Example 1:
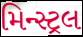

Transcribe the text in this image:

મિન્સ્ટ્રલ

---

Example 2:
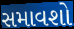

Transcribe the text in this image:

સમાવશો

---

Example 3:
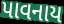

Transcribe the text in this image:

પાવનાય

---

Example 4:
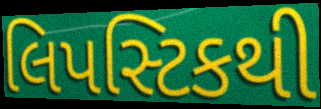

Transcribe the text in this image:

લિપસ્ટિકથી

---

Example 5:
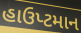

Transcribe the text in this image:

હાઉપ્ટમાન